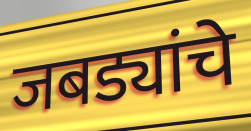
जबड्यांचे